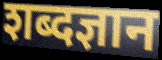
शब्दज्ञान